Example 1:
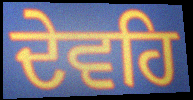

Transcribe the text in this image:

ਦੇਵਹਿ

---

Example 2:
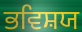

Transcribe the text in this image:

ਭਵਿਸ਼ਯ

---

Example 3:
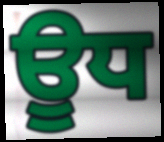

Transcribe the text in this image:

ਊਧ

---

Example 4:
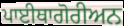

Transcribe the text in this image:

ਪਾਈਥਾਗੋਰੀਅਨ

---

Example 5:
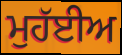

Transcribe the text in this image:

ਮੁਹੱਈਅ